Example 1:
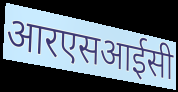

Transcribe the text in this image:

आरएसआईसी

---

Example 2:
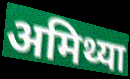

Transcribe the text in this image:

अमिथ्या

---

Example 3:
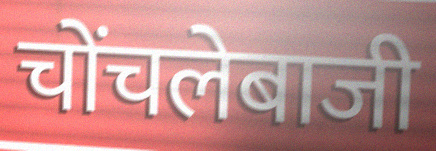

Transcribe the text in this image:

चोंचलेबाजी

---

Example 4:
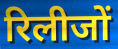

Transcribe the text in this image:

रिलीजों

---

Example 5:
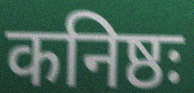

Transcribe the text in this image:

कनिष्ठः